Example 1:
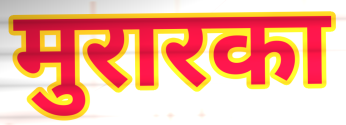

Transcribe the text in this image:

मुरारका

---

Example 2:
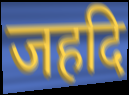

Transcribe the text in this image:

जहदि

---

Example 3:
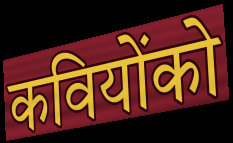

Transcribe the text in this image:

कवियोंको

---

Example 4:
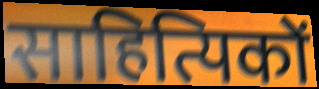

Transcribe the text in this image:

साहित्यिकों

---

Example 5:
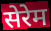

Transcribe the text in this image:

सेरेम